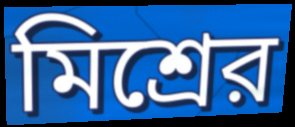
মিশ্রের